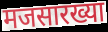
मजसारख्या